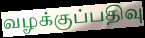
வழக்குப்பதிவு